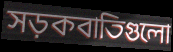
সড়কবাতিগুলো